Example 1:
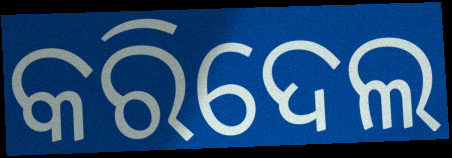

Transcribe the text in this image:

କରିଦେଲ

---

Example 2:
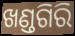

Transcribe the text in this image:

ଖଣ୍ଡଗିରି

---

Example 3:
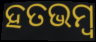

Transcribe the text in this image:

ହତଭମ୍ୱ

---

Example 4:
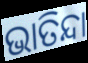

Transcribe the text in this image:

ଭାତିନ୍ଦା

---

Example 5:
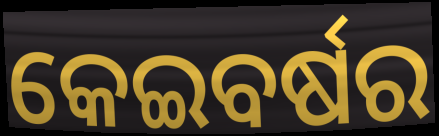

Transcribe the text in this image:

କେଇବର୍ଷର